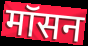
मॉसन